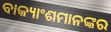
ବାକ୍ୟାଂଶମାନଙ୍କର